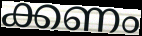
ക്കണം